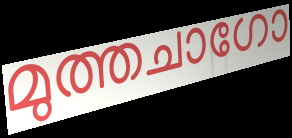
മുത്തചാഗോ